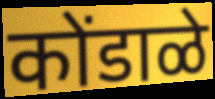
कोंडाळे